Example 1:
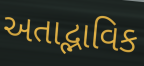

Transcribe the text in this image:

અતાદ્ભાવિક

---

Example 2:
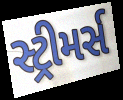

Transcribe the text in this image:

સ્ટ્રીમર્સ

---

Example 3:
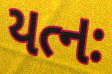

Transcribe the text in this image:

યત્નઃ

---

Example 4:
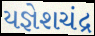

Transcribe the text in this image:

યજ્ઞેશચંદ્ર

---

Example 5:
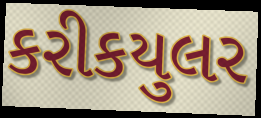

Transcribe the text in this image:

કરીકયુલર